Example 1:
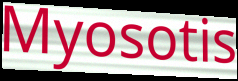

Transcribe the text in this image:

Myosotis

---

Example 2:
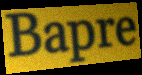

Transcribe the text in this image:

Bapre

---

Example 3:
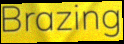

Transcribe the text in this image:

Brazing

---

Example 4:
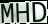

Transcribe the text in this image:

MHD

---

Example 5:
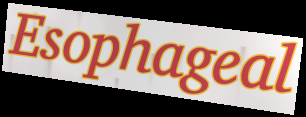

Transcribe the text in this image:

Esophageal